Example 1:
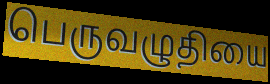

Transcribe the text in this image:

பெருவழுதியை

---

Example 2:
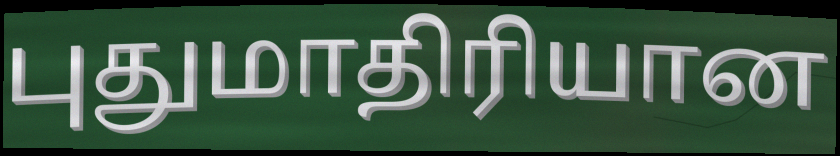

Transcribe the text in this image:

புதுமாதிரியான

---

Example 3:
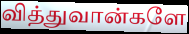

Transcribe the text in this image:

வித்துவான்களே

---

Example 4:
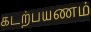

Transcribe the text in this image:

கடற்பயணம்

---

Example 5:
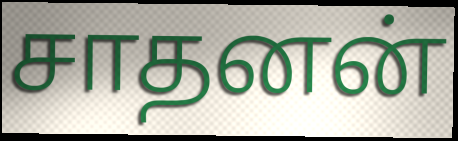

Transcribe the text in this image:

சாதனன்